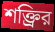
শক্ত্রির